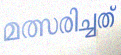
മത്സരിച്ചത്